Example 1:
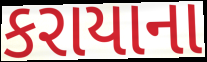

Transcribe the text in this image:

કરાયાના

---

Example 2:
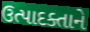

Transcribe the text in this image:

ઉત્પાદક્તાને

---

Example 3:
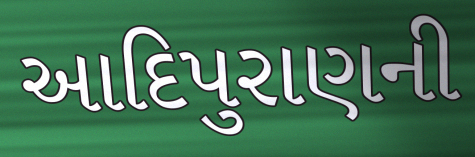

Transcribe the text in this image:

આદિપુરાણની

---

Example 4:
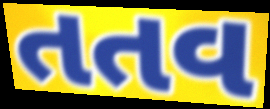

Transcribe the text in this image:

તતવ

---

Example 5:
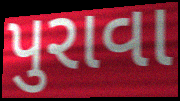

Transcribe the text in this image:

પુરાવા